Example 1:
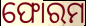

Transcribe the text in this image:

ଫୋରମ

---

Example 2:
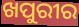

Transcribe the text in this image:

ଖପୁରୀର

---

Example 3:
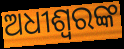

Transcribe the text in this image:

ଅଧୀଶ୍ୱରଙ୍କ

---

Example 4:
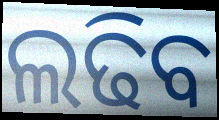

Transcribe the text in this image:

ଲଢିବ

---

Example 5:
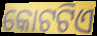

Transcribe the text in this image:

କୋଟଟିଏ